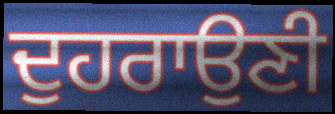
ਦੁਹਰਾਉਣੀ